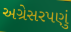
અગ્રેસરપણું